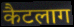
कैटलाग